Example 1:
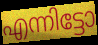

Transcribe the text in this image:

എന്നിട്ടോ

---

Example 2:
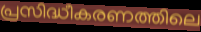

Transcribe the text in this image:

പ്രസിദ്ധീകരണത്തിലെ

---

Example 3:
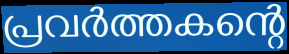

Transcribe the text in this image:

പ്രവർത്തകന്റെ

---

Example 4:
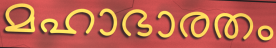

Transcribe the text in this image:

മഹാഭാരതം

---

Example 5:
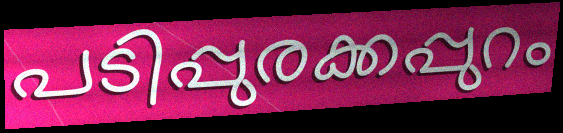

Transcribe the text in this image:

പടിപ്പുരക്കപ്പുറം